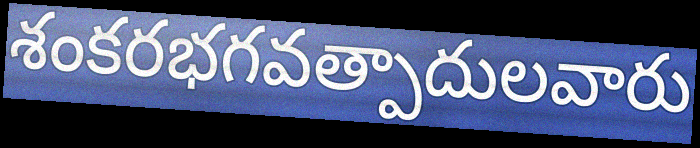
శంకరభగవత్పాదులవారు